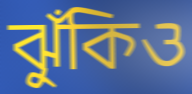
ঝুঁকিও